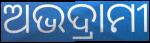
ଅଭଦ୍ରାମୀ